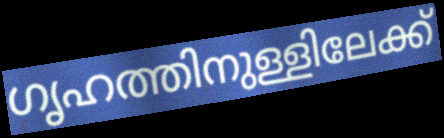
ഗൃഹത്തിനുള്ളിലേക്ക്